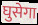
घुसेगा